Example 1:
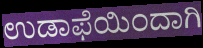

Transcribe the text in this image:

ಉಡಾಫೆಯಿಂದಾಗಿ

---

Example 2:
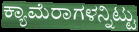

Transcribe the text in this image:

ಕ್ಯಾಮೆರಾಗಳನ್ನಿಟ್ಟು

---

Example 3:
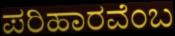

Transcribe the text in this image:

ಪರಿಹಾರವೆಂಬ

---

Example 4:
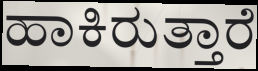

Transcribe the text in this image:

ಹಾಕಿರುತ್ತಾರೆ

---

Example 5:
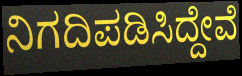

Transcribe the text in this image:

ನಿಗದಿಪಡಿಸಿದ್ದೇವೆ